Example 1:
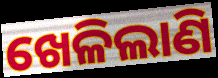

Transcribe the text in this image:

ଖେଳିଲାଣି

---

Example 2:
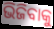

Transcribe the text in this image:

ଭିଜିବାକୁ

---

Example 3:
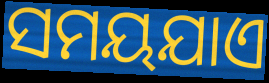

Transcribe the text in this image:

ସମୟଯାଏ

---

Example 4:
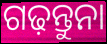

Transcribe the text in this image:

ଗଢ଼ନ୍ତୁନା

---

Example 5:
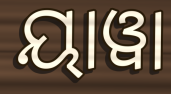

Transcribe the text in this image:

ୟାୱା